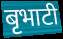
बृभाटी